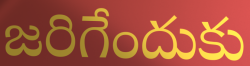
జరిగేందుకు